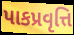
પાકપ્રવૃત્તિ